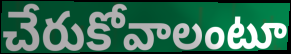
చేరుకోవాలంటూ